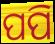
ପପି